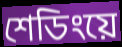
শেডিংয়ে